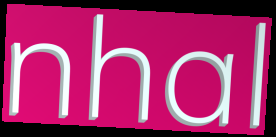
nhal